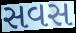
સવસ